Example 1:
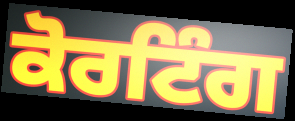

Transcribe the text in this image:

ਕੋਰਟਿੰਗ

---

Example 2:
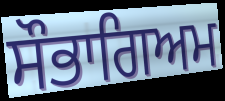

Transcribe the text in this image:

ਸੌਭਾਗਿਅਮ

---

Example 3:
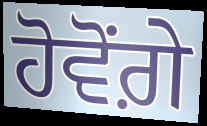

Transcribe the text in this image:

ਹੋਵੋਂਗ਼ੇ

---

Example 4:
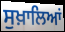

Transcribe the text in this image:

ਸੁਖ਼ਾਲਿਆਂ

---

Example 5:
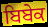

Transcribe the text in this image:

ਬਿਬੇਕ